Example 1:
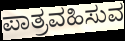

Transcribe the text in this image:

ಪಾತ್ರವಹಿಸುವ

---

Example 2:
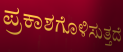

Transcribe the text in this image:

ಪ್ರಕಾಶಗೊಳಿಸುತ್ತದೆ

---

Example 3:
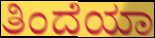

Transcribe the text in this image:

ತಿಂದೆಯಾ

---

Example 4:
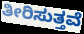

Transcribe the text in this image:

ತೀರಿಸುತ್ತವೆ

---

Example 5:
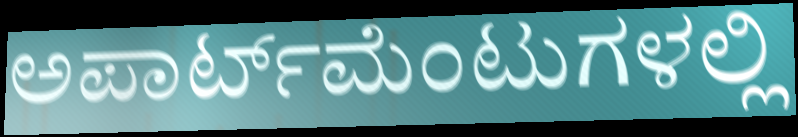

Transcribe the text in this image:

ಅಪಾರ್ಟ್‌ಮೆಂಟುಗಳಲ್ಲಿ